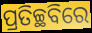
ପ୍ରତିଚ୍ଛବିରେ